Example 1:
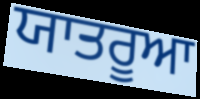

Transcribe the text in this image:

ਯਾਤਰੂਆ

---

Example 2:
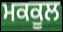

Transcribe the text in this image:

ਮਕਕੂਲ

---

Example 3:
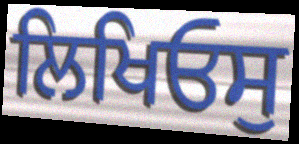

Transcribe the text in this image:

ਲਿਖਿਓਸੁ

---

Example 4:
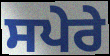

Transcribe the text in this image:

ਸਪੇਰੇ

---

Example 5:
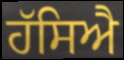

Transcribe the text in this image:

ਹੱਸਿਐ